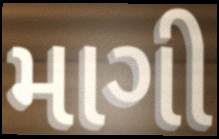
માગી